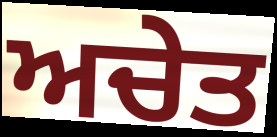
ਅਚੇਤ